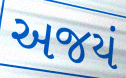
અજયં